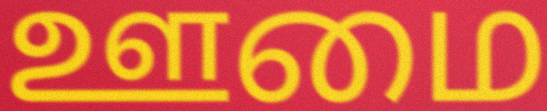
ஊமை